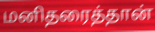
மனிதரைத்தான்